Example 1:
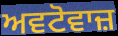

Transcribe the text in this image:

ਅਵਟੋਵਾਜ਼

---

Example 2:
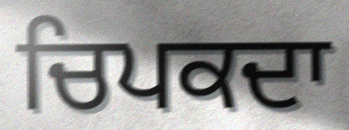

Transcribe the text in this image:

ਚਿਪਕਦਾ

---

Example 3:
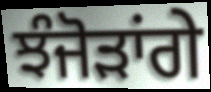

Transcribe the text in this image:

ਝੰਜੋੜਾਂਗੇ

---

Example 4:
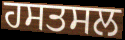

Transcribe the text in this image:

ਹਸਤਸਲ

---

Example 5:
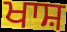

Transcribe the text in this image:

ਖਾਸ਼